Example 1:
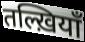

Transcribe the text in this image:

तल्ख़ियाँ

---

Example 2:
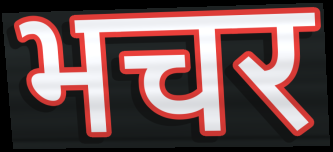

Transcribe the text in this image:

भचर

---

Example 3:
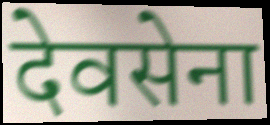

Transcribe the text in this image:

देवसेना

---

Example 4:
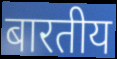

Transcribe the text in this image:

बारतीय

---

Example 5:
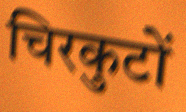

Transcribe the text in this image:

चिरकुटों